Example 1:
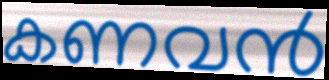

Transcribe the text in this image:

കണവൻ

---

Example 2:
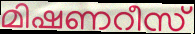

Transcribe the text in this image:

മിഷണറീസ്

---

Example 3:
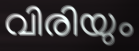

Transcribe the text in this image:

വിരിയും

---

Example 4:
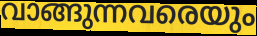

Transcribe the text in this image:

വാങ്ങുന്നവരെയും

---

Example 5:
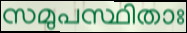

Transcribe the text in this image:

സമുപസ്ഥിതാഃ